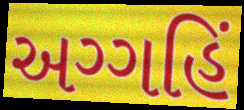
અગ્ગહિં